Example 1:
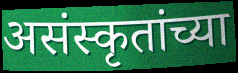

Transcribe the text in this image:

असंस्कृतांच्या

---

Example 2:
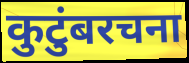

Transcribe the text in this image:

कुटुंबरचना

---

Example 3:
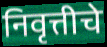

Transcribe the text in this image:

निवृत्तीचे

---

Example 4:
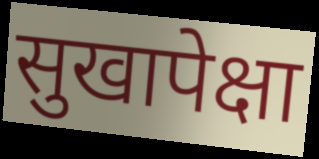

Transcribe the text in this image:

सुखापेक्षा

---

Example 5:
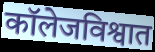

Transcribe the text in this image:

कॉलेजविश्वात